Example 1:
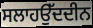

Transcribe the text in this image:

ਸਲਾਹਉੱਦਦੀਨ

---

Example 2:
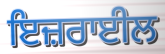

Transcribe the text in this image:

ਇਜ਼ਰਾਈਲ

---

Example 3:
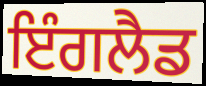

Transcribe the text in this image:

ਇੰਗਲੈਡ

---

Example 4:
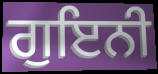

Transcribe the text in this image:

ਗੁਇਨੀ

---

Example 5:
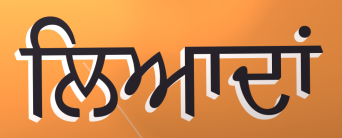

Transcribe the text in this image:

ਲਿਆਦਾਂ